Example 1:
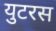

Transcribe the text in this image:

युटरस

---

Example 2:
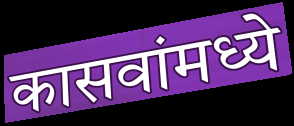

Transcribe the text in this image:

कासवांमध्ये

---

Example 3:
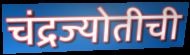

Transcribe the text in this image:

चंद्रज्योतीची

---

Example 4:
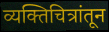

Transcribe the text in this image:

व्यक्तिचित्रांतून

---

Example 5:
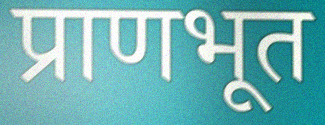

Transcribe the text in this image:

प्राणभूत